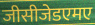
जीसीजेडएमए